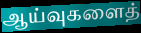
ஆய்வுகளைத்